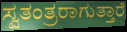
ಸ್ವತಂತ್ರರಾಗುತ್ತಾರೆ